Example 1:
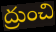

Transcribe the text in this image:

ద్రుంచి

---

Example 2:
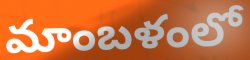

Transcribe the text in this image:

మాంబళంలో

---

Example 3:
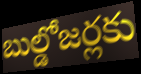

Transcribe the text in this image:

బుల్డోజర్లకు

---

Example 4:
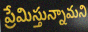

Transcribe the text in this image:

ప్రేమిస్తున్నామని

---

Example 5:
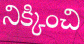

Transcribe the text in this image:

నిక్కించి